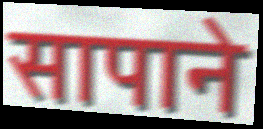
सापाने